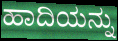
ಹಾದಿಯನ್ನು